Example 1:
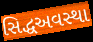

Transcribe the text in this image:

સિદ્ધઅવસ્થા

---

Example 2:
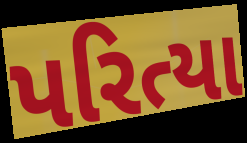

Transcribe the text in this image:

પરિત્યા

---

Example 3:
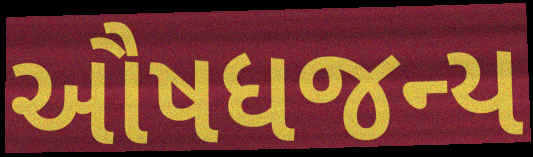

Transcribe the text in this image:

ઔષધજન્ય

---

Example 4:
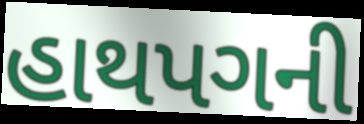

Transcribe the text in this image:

હાથપગની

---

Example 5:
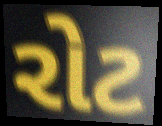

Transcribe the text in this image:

રોટ